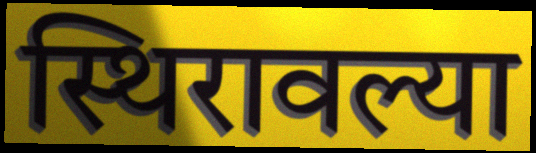
स्थिरावल्या